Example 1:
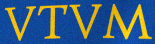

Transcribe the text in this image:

VTVM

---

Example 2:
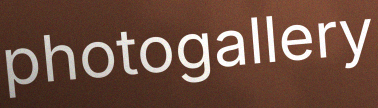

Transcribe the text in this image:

photogallery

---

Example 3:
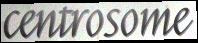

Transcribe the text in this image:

centrosome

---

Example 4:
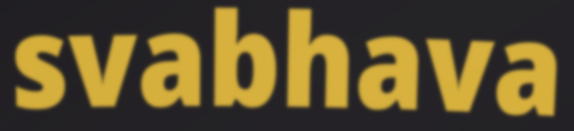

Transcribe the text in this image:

svabhava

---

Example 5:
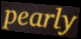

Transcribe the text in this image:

pearly